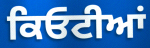
ਕਿਓਟੀਆਂ